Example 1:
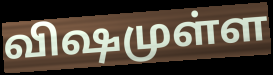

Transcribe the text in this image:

விஷமுள்ள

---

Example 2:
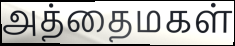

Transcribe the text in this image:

அத்தைமகள்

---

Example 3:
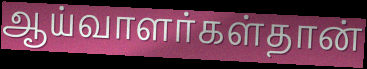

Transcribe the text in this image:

ஆய்வாளர்கள்தான்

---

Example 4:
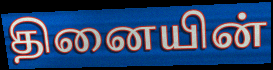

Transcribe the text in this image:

தினையின்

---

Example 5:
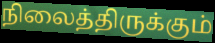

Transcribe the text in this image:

நிலைத்திருக்கும்